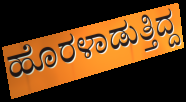
ಹೊರಳಾಡುತ್ತಿದ್ದ